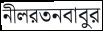
নীলরতনবাবুর